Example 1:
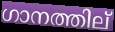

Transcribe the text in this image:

ഗാനത്തില്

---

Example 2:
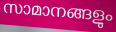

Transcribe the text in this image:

സാമാനങ്ങളും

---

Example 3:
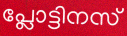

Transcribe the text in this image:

പ്ലോട്ടിനസ്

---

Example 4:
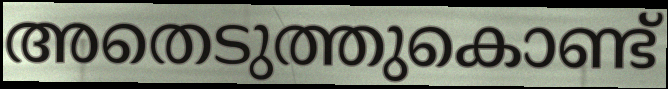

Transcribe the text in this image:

അതെടുത്തുകൊണ്ട്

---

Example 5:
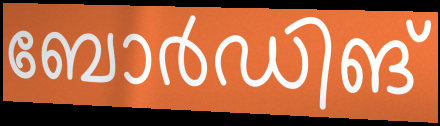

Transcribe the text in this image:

ബോർഡിങ്